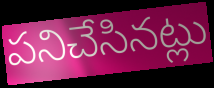
పనిచేసినట్లు